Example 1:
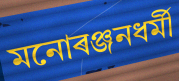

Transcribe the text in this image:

মনোৰঞ্জনধৰ্মী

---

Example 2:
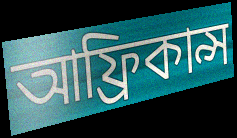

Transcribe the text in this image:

আফ্ৰিকান্স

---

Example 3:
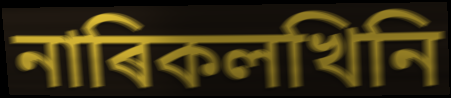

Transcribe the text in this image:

নাৰিকলখিনি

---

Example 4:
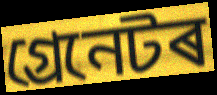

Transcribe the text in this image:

গ্ৰেনেটৰ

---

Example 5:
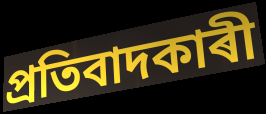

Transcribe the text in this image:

প্ৰতিবাদকাৰী